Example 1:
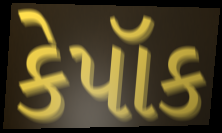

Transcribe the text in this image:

કેપૉક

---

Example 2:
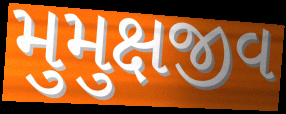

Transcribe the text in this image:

મુમુક્ષજીવ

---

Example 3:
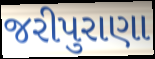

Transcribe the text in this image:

જરીપુરાણા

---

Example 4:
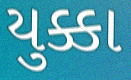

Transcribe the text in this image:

યુક્કા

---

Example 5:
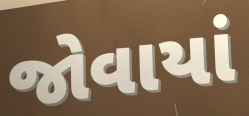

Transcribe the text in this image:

જોવાયાં